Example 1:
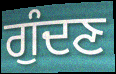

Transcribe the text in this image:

ਗੁੰਦਣ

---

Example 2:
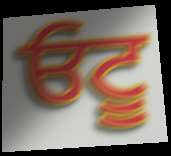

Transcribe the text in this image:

ਓਟੂ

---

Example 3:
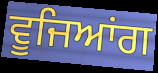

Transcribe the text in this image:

ਵੂਜਿਆਂਗ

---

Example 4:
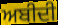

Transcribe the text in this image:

ਅਬੀਦੀ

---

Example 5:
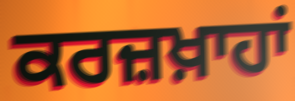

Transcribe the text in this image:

ਕਰਜ਼ਖ਼ਾਹਾਂ